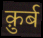
क़ुर्ब